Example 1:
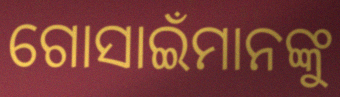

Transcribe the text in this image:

ଗୋସାଇଁମାନଙ୍କୁ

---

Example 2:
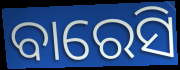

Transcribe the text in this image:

ବାରେସି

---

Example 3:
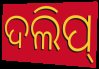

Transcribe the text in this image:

ଦଲିପ୍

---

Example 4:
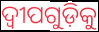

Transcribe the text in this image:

ଦ୍ୱୀପଗୁଡ଼ିକୁ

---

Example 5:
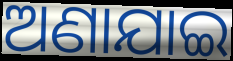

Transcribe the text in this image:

ଅଣାଯାଇ